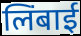
लिंबाई